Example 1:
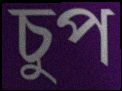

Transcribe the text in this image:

চুপ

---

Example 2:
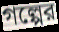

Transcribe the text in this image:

গল্পের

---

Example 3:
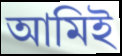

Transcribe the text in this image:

আমিই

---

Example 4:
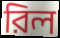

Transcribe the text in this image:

রিল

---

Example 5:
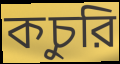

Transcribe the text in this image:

কচুরি